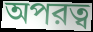
অপরত্ব